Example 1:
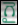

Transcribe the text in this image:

గై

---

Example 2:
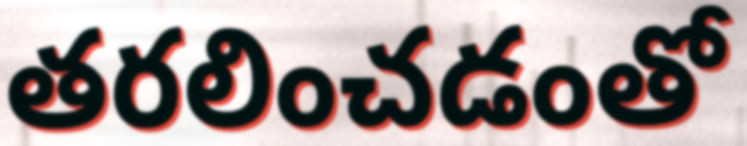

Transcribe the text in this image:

తరలించడంతో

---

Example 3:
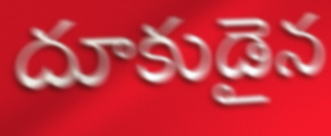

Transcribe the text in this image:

దూకుడైన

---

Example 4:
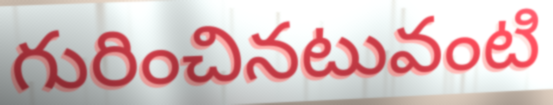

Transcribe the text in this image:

గురించినటువంటి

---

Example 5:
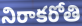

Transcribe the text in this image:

నిరాకరోతి